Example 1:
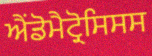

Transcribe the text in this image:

ਐਂਡੋਮੈਟ੍ਰੋਸਿਸਸ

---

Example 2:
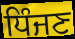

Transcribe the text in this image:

ਧਿੰਜਣ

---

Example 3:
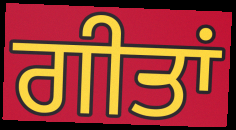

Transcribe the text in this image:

ਗੀਤਾਂ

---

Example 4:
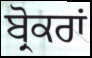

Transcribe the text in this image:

ਬ੍ਰੋਕਰਾਂ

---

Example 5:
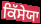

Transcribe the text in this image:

ਕਿੱਸੇਯਾ